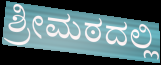
ಶ್ರೀಮಠದಲ್ಲಿ